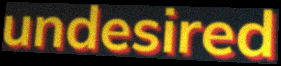
undesired